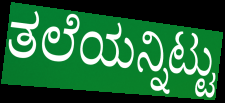
ತಲೆಯನ್ನಿಟ್ಟು